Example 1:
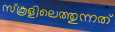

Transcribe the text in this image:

സ്കൂളിലെത്തുന്നത്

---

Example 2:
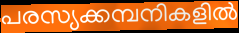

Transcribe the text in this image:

പരസ്യക്കമ്പനികളിൽ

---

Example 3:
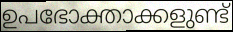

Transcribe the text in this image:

ഉപഭോക്താക്കളുണ്ട്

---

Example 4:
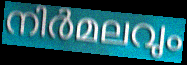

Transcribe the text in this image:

നിർമലവും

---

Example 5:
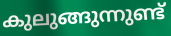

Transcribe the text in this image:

കുലുങ്ങുന്നുണ്ട്